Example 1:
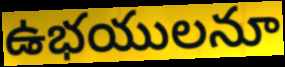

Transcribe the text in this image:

ఉభయులనూ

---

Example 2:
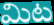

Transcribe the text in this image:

మిట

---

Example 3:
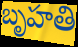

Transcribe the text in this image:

బృహతి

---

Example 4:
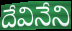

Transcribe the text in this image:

దేవినేని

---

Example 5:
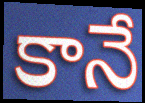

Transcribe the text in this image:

కానే